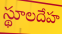
స్థూలదేహ